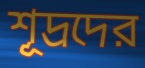
শূদ্রদের